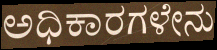
ಅಧಿಕಾರಗಳೇನು